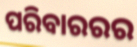
ପରିବାରରର